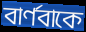
বার্ণবাকে